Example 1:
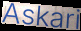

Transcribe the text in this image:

Askari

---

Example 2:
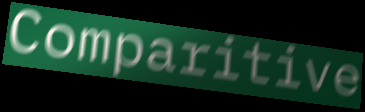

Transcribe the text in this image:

Comparitive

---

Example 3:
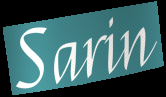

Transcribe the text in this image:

Sarin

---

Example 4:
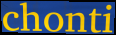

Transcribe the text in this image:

chonti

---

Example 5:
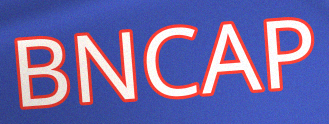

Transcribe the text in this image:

BNCAP